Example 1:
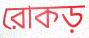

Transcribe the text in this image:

রোকড়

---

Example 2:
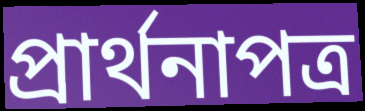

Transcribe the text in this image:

প্রার্থনাপত্র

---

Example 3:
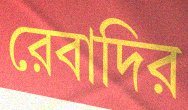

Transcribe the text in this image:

রেবাদির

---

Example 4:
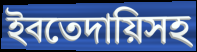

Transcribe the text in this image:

ইবতেদায়িসহ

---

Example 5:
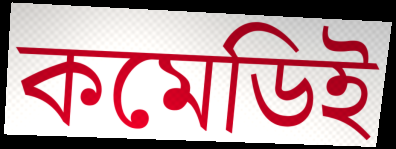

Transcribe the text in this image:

কমেডিই